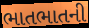
ભાતભાતની